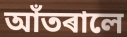
আঁতৰালে